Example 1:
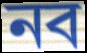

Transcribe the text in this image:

নব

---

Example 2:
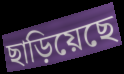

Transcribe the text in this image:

ছাড়িয়েছে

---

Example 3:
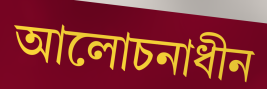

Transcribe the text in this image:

আলোচনাধীন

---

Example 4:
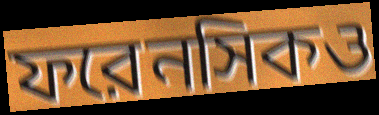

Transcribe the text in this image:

ফরেনসিকও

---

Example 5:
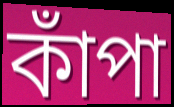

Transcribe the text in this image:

কাঁপা